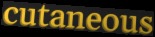
cutaneous